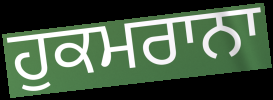
ਹੁਕਮਰਾਨਾ